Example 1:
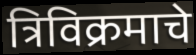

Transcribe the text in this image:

त्रिविक्रमाचे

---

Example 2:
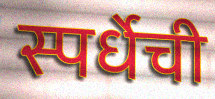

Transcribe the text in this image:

स्पर्धेची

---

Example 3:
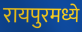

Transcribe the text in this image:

रायपुरमध्ये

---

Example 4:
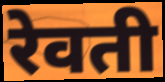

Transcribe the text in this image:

रेवती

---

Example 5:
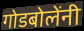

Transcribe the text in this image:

गोडबोलेंनी